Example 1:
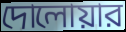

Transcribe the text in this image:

দোলোয়ার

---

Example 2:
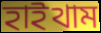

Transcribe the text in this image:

হাইথাম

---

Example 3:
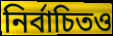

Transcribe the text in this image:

নির্বাচিতও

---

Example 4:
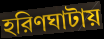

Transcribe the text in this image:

হরিণঘাটায়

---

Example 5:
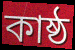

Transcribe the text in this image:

কাষ্ঠ